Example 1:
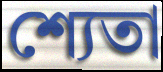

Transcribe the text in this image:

শ্যেতা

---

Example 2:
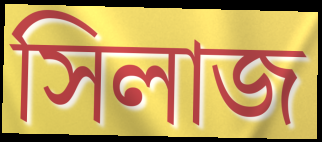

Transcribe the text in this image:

সিলাজ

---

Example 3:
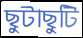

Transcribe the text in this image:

ছুটাছুটি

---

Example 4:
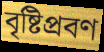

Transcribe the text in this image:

বৃষ্টিপ্রবণ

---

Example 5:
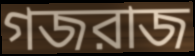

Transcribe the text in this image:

গজরাজ